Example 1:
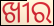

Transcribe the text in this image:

ଖୀର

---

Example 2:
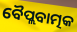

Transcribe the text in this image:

ବୈପ୍ଲବାତ୍ମକ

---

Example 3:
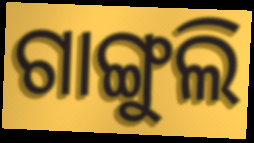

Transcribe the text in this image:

ଗାଙ୍ଗୁଲି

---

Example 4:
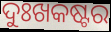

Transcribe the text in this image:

ଦୁଃଖକଷ୍ଟର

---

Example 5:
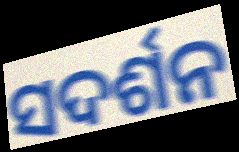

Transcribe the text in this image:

ସଦର୍ଶନ